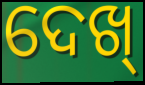
ଦେଖ୍